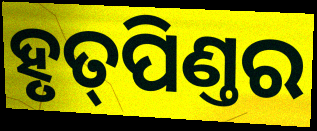
ହୃତ୍‌ପିଣ୍ତର